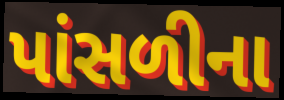
પાંસળીના